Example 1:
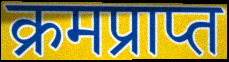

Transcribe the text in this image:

क्रमप्राप्त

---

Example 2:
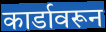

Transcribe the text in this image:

कार्डावरून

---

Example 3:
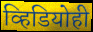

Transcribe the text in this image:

व्हिडियोही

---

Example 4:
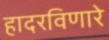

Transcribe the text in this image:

हादरविणारे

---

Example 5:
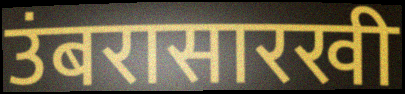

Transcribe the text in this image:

उंबरासारखी